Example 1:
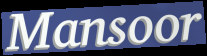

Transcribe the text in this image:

Mansoor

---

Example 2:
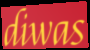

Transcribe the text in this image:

diwas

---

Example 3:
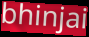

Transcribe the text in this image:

bhinjai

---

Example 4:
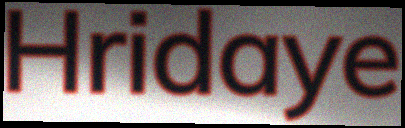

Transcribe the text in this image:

Hridaye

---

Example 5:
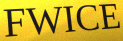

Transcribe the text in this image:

FWICE